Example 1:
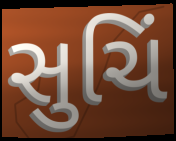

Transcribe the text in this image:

સુચિં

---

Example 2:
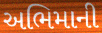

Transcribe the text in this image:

અભિમાની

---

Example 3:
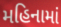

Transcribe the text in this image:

મહિનામાં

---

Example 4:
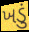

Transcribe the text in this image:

ખડું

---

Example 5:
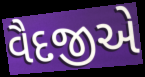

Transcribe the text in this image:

વૈદજીએ